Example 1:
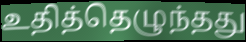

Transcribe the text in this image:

உதித்தெழுந்தது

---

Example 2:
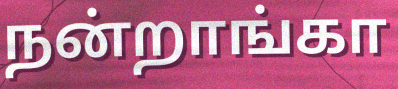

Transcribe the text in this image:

நன்றாங்கா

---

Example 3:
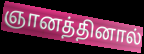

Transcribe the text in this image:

ஞானத்தினால்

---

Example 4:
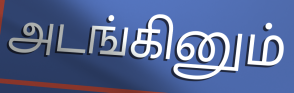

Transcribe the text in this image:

அடங்கினும்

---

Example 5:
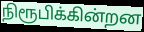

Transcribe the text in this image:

நிரூபிக்கின்றன